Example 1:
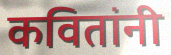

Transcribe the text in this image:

कवितांनी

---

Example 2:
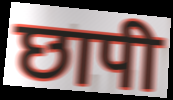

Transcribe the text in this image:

छापी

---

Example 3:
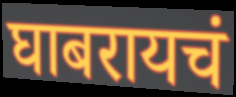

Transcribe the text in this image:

घाबरायचं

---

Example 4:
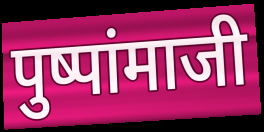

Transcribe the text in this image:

पुष्पांमाजी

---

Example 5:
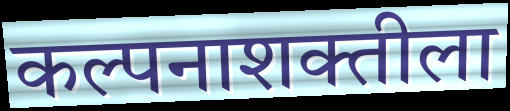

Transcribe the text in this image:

कल्पनाशक्तीला